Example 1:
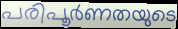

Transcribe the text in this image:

പരിപൂർണതയുടെ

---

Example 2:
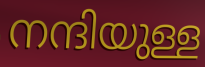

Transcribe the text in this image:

നന്ദിയുള്ള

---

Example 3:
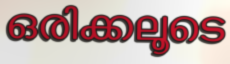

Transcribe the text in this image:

ഒരിക്കലൂടെ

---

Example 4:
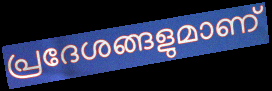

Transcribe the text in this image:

പ്രദേശങ്ങളുമാണ്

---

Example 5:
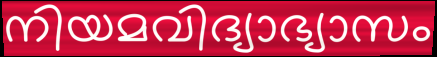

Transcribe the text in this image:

നിയമവിദ്യാഭ്യാസം